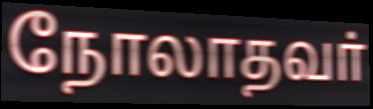
நோலாதவர்